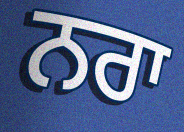
ਨਰਾ